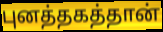
புனத்தகத்தான்